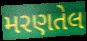
મરણતેલ